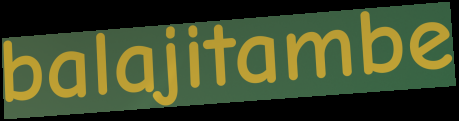
balajitambe